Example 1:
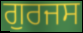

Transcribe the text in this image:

ਗੁਰਜਸ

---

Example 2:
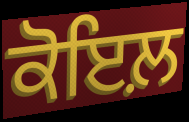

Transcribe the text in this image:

ਕੋਇਲ਼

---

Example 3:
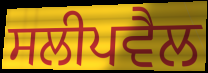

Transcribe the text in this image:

ਸਲੀਪਵੈਲ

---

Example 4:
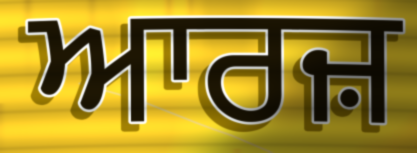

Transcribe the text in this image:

ਆਰਜ਼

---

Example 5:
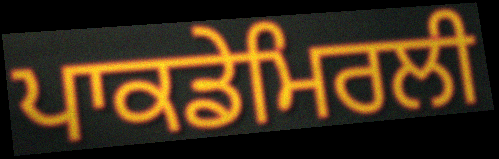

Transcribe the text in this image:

ਪਾਕਡੇਮਿਰਲੀ